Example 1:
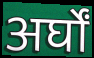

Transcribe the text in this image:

अर्घों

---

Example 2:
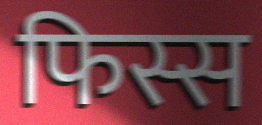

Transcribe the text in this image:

फिस्स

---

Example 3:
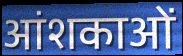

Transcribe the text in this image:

आंशकाओं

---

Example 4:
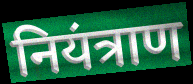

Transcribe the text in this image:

नियंत्राण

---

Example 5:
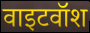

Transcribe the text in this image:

वाइटवॉश